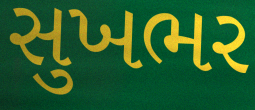
સુખભર